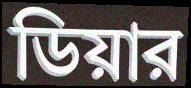
ডিয়ার